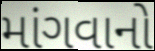
માંગવાનો